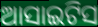
ଆସାଇଟିସ